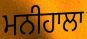
ਮਨੀਹਾਲਾ